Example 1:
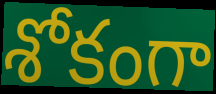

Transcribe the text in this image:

శోకంగా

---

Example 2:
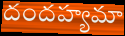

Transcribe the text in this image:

దందహ్యమా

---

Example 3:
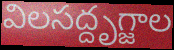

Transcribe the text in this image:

విలసద్దృగ్జాల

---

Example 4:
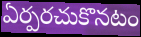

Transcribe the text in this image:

ఏర్పరచుకొనటం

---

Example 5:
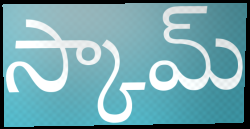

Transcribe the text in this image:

స్కామ్